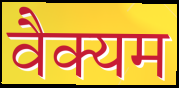
वैक्यम